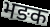
भङक